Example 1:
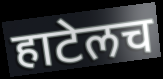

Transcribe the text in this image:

हाटेलच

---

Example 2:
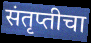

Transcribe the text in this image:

संतृप्तीचा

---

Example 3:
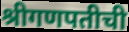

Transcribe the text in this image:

श्रीगणपतीची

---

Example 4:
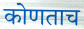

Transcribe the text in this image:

कोणताच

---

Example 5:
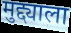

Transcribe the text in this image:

मुद्द्याला